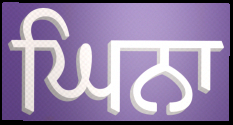
ਘਿਨਾ